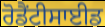
ਰੋਡੈਂਟੀਸਾਈਡ